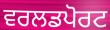
ਵਰਲਡਪੋਰਟ